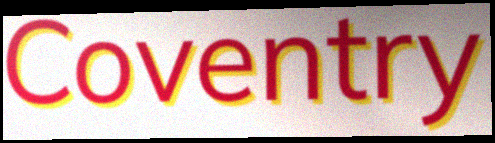
Coventry